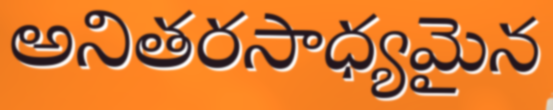
అనితరసాధ్యమైన